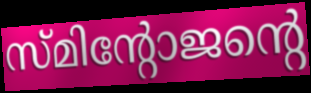
സ്മിന്റോജന്റെ